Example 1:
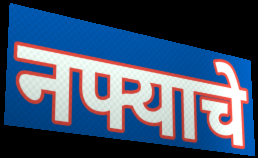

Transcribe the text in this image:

नफ्याचे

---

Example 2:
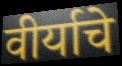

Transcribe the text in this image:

वीर्याचे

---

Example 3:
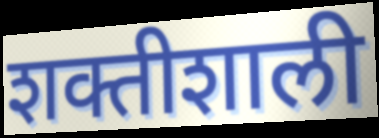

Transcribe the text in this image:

शक्तीशाली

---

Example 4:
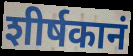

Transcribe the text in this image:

शीर्षकानं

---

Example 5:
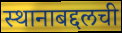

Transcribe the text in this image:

स्थानाबद्दलची